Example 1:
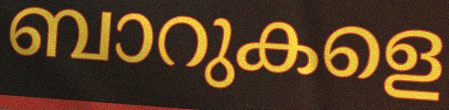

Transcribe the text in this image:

ബാറുകളെ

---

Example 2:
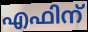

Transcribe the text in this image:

എഫിന്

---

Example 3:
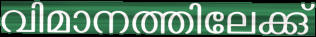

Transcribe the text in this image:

വിമാനത്തിലേക്കു്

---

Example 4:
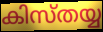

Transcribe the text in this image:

കിസ്തയ്യ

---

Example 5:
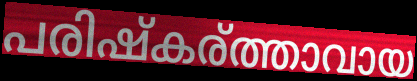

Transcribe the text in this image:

പരിഷ്കര്ത്താവായ